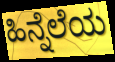
ಹಿನ್ನೆಲೆಯ